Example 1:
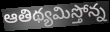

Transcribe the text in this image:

ఆతిథ్యమిస్తోన్న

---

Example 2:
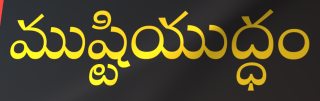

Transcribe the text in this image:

ముష్టియుద్ధం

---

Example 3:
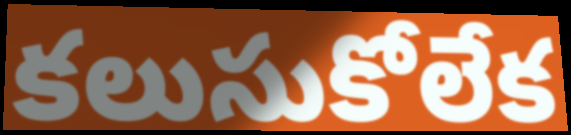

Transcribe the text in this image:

కలుసుకోలేక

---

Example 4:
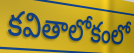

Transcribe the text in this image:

కవితాలోకంలో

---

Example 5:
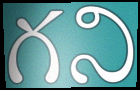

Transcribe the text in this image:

గని